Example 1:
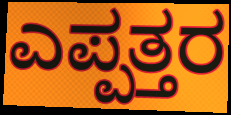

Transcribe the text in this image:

ಎಪ್ಪತ್ತರ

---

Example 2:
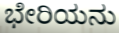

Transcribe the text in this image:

ಭೇರಿಯನು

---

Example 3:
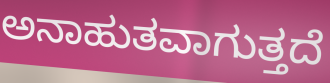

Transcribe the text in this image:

ಅನಾಹುತವಾಗುತ್ತದೆ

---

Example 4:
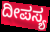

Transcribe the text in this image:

ದೀಪಸ್ಯ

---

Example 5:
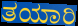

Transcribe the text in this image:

ತಯಾರಿ